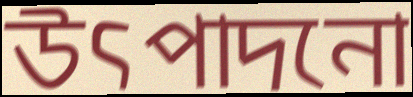
উৎপাদনো